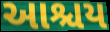
આશ્ચય